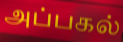
அப்பகல்